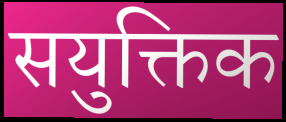
सयुक्तिक